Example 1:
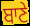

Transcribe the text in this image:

ਬਾਣੇ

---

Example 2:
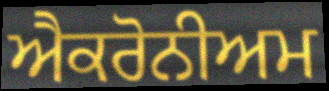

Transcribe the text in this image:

ਐਕਰੋਨੀਅਮ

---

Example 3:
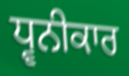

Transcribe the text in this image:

ਧ੍ਵਨੀਕਾਰ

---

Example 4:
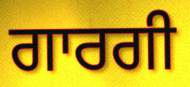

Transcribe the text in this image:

ਗਾਰਗੀ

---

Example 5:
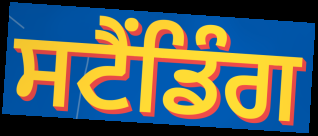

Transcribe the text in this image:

ਸਟੈਂਡਿੰਗ